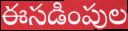
ఈసడింపుల